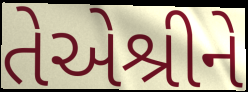
તેએશ્રીને